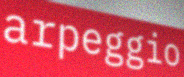
arpeggio